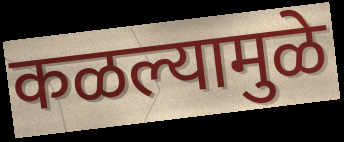
कळल्यामुळे